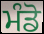
ਮੰਡੋ